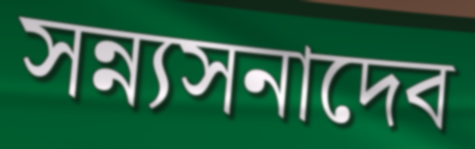
সন্ন্যসনাদেব